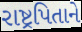
રાષ્ટ્રપિતાને